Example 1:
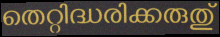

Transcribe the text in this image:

തെറ്റിദ്ധരിക്കരുതു്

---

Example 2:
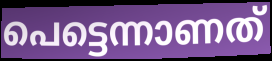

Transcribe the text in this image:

പെട്ടെന്നാണത്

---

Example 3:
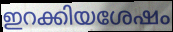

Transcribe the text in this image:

ഇറക്കിയശേഷം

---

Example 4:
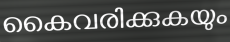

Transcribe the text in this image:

കൈവരിക്കുകയും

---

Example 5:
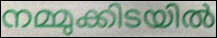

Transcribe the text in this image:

നമ്മുക്കിടയിൽ